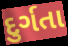
દુર્ગતા